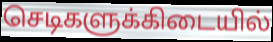
செடிகளுக்கிடையில்